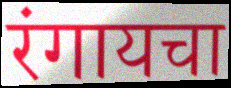
रंगायचा